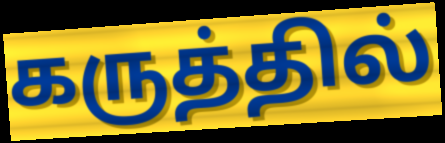
கருத்தில்